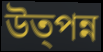
উত্পন্ন